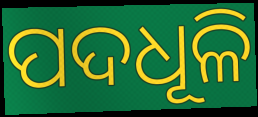
ପଦଧୂଳି